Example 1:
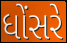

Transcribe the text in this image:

ધોંસરે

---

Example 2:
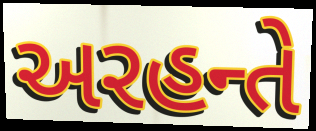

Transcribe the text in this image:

અરહન્તે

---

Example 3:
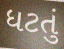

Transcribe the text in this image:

ધટતું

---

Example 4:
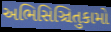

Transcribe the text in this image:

અભિસિઞ્ચિતુકામો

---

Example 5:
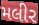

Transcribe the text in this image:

મલીર